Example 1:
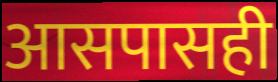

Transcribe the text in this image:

आसपासही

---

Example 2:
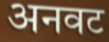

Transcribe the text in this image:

अनवट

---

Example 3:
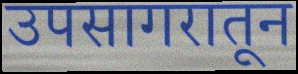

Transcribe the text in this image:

उपसागरातून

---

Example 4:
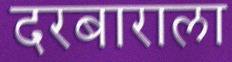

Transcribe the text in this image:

दरबाराला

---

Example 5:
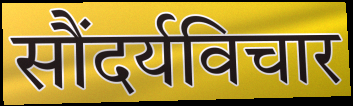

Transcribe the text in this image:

सौंदर्यविचार